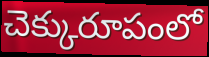
చెక్కురూపంలో